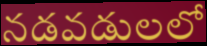
నడవడులలో